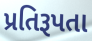
પ્રતિરૂપતા